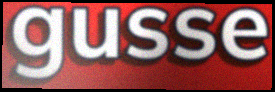
gusse